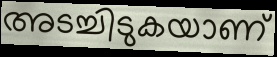
അടച്ചിടുകയാണ്